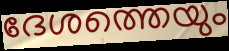
ദേശത്തെയും